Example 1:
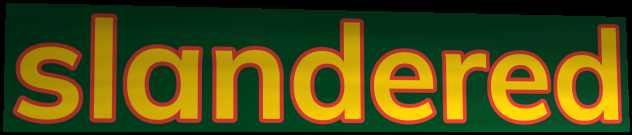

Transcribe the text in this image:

slandered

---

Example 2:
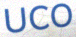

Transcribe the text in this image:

UCO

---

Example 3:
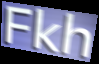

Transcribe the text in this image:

Fkh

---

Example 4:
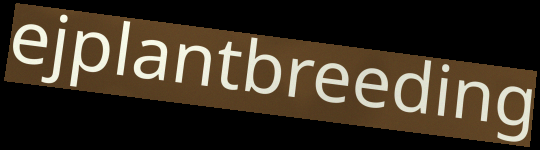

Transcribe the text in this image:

ejplantbreeding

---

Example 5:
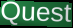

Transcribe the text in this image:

Quest